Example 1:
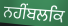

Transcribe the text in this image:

ਨਹੀਂਬਲਕਿ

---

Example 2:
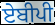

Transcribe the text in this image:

ਏਬੀਪੀ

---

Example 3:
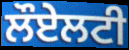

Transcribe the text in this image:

ਲੌਏਲਟੀ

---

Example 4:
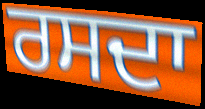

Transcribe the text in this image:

ਰਸਦਾ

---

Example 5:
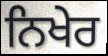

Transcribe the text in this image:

ਨਿਖੇਰ